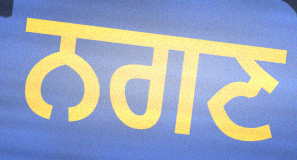
ਨਗਣ